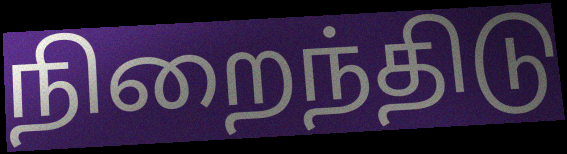
நிறைந்திடு